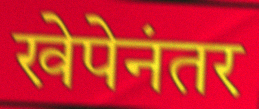
खेपेनंतर